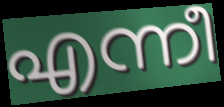
എന്നീ